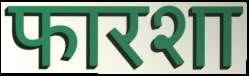
फारशा